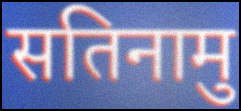
सतिनामु